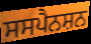
ਸਸਪੈਨਸ਼ਨ